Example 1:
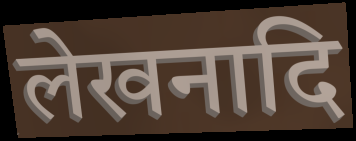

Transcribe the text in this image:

लेखनादि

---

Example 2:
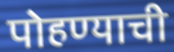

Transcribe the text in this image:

पोहण्याची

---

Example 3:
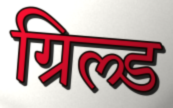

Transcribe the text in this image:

ग्रिल्ड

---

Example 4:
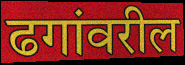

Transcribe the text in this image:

ढगांवरील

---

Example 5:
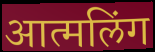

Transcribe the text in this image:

आत्मलिंग